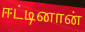
ஈட்டினான்